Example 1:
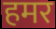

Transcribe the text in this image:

हमर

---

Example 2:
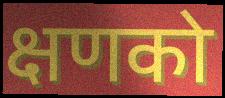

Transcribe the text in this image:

क्षणको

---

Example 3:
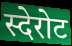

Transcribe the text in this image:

स्देरोट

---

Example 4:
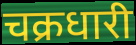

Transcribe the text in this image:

चक्रधारी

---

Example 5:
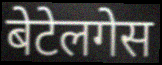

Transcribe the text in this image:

बेटेलगेस